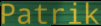
Patrik